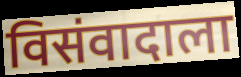
विसंवादाला